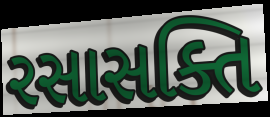
રસાસક્તિ